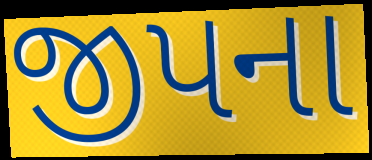
જીપના